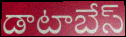
డాటాబేస్